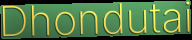
Dhondutai